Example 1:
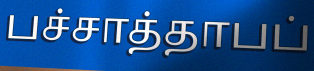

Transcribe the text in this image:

பச்சாத்தாபப்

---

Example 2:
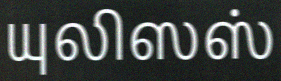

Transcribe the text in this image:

யுலிஸஸ்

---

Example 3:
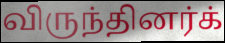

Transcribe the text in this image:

விருந்தினர்க்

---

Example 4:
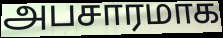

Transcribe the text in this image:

அபசாரமாக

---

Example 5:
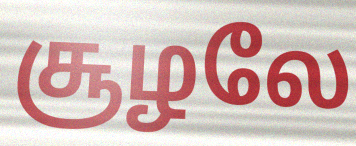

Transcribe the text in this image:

சூழலே